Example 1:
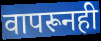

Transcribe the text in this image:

वापरूनही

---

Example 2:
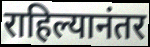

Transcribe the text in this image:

राहिल्यानंतर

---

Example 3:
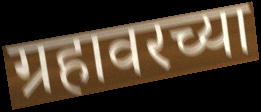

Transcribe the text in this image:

ग्रहावरच्या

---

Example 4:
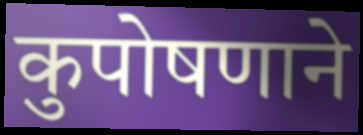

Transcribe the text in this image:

कुपोषणाने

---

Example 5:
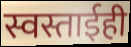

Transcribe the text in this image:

स्वस्ताईही